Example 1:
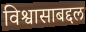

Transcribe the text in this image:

विश्वासाबद्दल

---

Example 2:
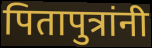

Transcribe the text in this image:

पितापुत्रांनी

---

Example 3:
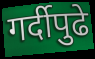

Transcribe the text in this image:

गर्दीपुढे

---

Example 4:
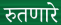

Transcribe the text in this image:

रुतणारे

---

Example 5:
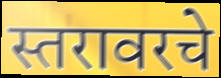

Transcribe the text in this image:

स्तरावरचे